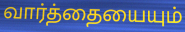
வார்த்தையையும்